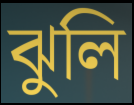
ঝুলি